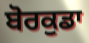
ਬੋਰਕੁਡਾ